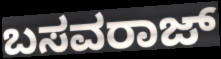
ಬಸವರಾಜ್